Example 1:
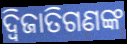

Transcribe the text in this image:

ଦ୍ୱିଜାତିଗଣଙ୍କ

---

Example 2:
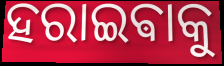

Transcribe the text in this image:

ହରାଇଵାକୁ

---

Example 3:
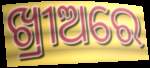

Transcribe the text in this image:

ଖ୍ରୀଅରେ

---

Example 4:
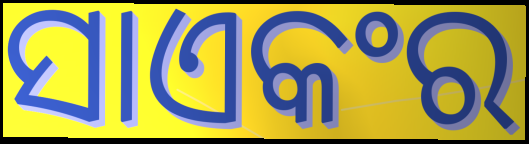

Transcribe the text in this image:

ସାଏକଂର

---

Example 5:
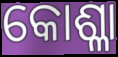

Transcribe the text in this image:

କୋଶ୍ଳା